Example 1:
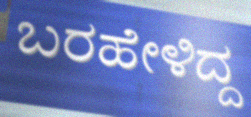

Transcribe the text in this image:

ಬರಹೇಳಿದ್ದ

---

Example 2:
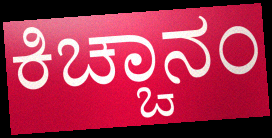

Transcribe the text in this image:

ಕಿಚ್ಚಾನಂ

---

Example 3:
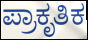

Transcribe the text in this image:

ಪ್ರಾಕೃತಿಕ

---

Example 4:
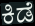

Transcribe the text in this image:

ಕಿಡೆ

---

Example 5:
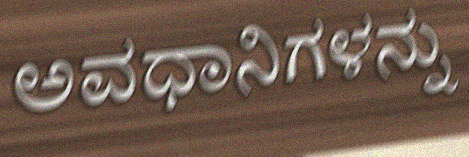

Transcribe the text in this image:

ಅವಧಾನಿಗಳನ್ನು